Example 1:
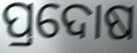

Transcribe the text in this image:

ପ୍ରଦୋଷ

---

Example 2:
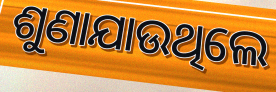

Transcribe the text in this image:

ଶୁଣାଯାଉଥିଲେ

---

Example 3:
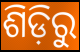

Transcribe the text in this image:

ଶିଡ଼ିରୁ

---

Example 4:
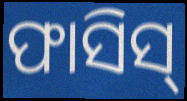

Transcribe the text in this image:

ଫାସିସ୍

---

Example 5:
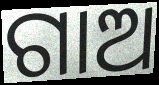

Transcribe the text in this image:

ଗାଅ